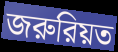
জরুরিয়ত